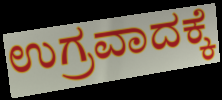
ಉಗ್ರವಾದಕ್ಕೆ